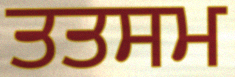
ਤਤਸਮ